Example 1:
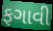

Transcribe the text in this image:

ફગાવી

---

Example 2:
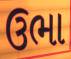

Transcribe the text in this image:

ઉભા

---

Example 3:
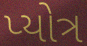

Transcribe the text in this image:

પ્યોત્ર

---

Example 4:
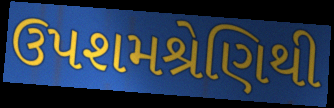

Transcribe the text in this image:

ઉપશમશ્રેણિથી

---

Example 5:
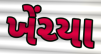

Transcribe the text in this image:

ખેંચ્યા